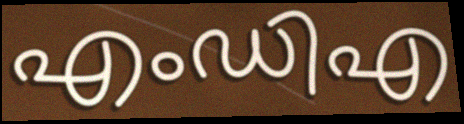
എംഡിഎ